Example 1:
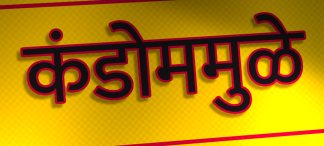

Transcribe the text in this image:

कंडोममुळे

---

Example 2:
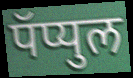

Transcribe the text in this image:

पॅप्युल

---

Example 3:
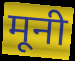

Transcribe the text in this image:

मूनी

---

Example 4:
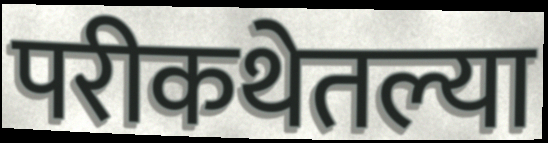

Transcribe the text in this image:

परीकथेतल्या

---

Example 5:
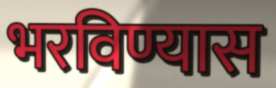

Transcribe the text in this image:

भरविण्यास